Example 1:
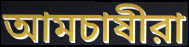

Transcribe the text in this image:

আমচাষীরা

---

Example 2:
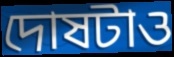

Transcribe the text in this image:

দোষটাও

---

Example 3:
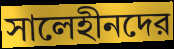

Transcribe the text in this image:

সালেহীনদের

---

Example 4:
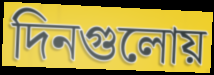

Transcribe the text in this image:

দিনগুলোয়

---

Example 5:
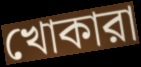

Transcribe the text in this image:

খোকারা